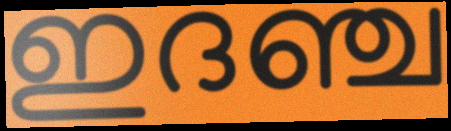
ഇദഞ്ച